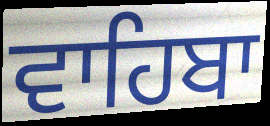
ਵਾਹਿਬਾ